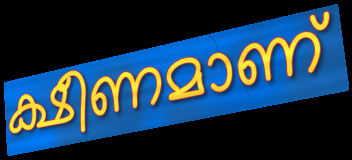
ക്ഷീണമാണ്